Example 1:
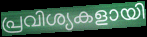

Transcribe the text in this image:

പ്രവിശ്യകളായി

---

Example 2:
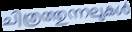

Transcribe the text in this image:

ചിത്രത്തുന്നലുകൾ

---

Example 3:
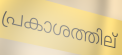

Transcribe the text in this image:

പ്രകാശത്തില്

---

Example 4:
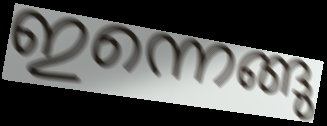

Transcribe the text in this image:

ഇന്നെങ്ങു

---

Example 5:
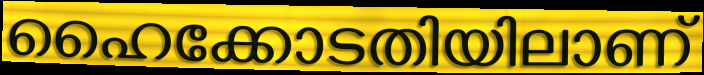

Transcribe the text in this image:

ഹൈക്കോടതിയിലാണ്